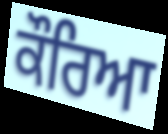
ਕੌਰਿਆ